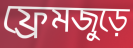
ফ্রেমজুড়ে